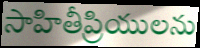
సాహితీప్రియులను